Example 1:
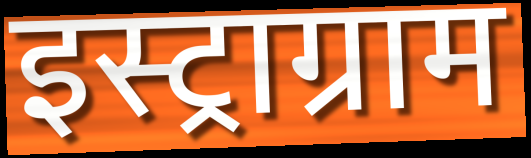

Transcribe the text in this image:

इस्ट्राग्राम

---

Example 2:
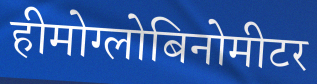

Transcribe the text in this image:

हीमोग्लोबिनोमीटर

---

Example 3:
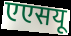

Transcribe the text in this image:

एएसयू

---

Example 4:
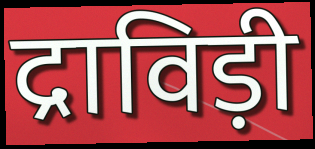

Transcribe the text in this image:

द्राविड़ी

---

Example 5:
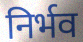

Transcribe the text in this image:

निर्भव